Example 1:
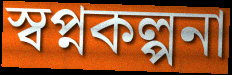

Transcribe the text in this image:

স্বপ্নকল্পনা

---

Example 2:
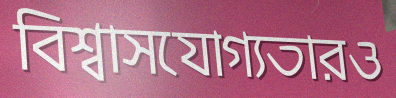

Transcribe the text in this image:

বিশ্বাসযোগ্যতারও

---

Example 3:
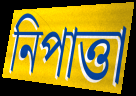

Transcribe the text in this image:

নিপাত্তা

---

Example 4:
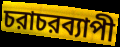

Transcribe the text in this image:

চরাচরব্যাপী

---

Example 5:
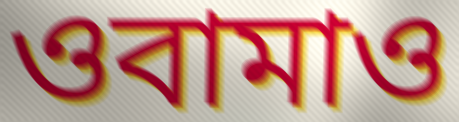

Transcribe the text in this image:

ওবামাও